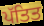
ਪੱਤਿਤ